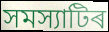
সমস্যাটিৰ